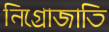
নিগ্রোজাতি